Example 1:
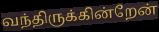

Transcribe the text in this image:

வந்திருக்கின்றேன்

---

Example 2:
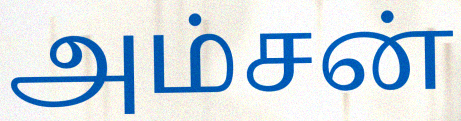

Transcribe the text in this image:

அம்சன்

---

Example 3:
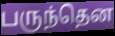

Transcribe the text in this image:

பருந்தென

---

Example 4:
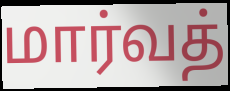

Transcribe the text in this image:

மார்வத்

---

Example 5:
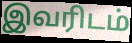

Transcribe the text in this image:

இவரிடம்